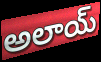
అలాయ్